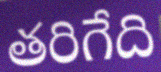
తరిగేది